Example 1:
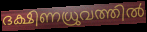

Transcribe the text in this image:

ദക്ഷിണധ്രുവത്തിൽ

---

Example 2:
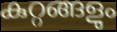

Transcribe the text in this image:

കുറ്റങ്ങളും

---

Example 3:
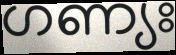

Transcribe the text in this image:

ഗണ്യഃ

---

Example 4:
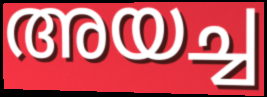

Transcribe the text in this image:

അയച്ച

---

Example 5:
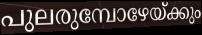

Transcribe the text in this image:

പുലരുമ്പോഴേയ്ക്കും